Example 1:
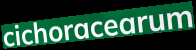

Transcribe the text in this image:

cichoracearum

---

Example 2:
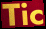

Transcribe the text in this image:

Tic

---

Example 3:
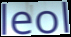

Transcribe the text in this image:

leol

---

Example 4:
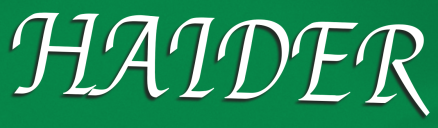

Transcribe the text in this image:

HAIDER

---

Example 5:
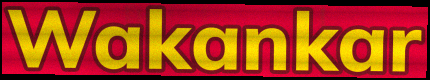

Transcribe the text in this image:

Wakankar